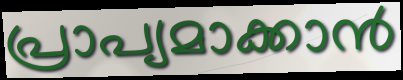
പ്രാപ്യമാക്കാൻ